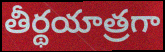
తీర్థయాత్రగా